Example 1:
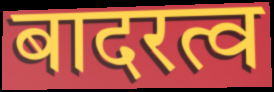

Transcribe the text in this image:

बादरत्व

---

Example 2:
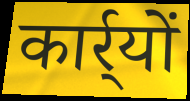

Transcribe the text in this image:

कार्र्यों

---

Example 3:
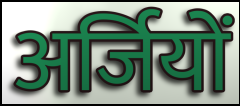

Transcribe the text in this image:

अर्जियों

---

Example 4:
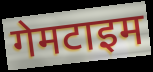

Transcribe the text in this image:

गेमटाइम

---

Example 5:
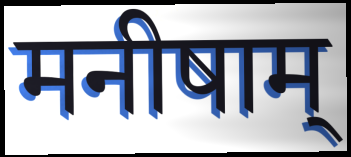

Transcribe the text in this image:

मनीषाम्